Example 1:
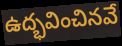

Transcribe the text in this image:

ఉద్భవించినవే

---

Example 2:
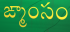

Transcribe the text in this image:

ఙ్మాంసం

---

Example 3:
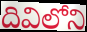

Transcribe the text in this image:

దివిలోని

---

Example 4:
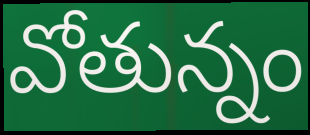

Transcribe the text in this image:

వోతున్నం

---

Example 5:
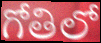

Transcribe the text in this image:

గోతిలో